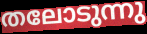
തലോടുന്നു